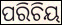
ପରିଚିୟ